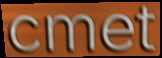
cmet